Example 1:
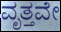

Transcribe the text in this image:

ವೃತ್ತವೇ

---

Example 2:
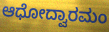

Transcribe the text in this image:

ಆಧೋದ್ವಾರಮಂ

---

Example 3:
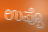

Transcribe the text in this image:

ಉಪ್ಪೊ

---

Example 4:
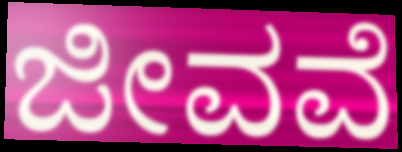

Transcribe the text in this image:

ಜೀವವೆ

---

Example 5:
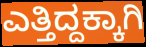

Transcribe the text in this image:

ಎತ್ತಿದ್ದಕ್ಕಾಗಿ